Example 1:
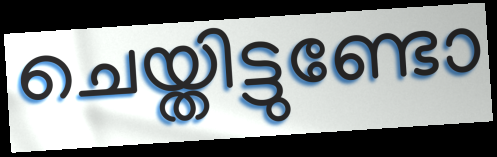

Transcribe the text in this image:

ചെയ്തിട്ടുണ്ടോ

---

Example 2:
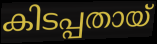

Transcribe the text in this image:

കിടപ്പതായ്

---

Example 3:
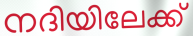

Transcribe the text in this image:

നദിയിലേക്ക്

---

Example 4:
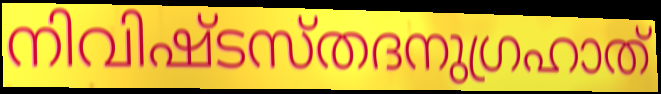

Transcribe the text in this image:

നിവിഷ്ടസ്തദനുഗ്രഹാത്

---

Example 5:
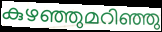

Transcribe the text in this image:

കുഴഞ്ഞുമറിഞ്ഞു